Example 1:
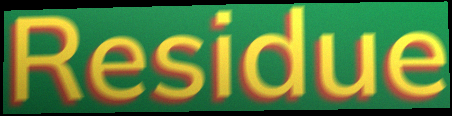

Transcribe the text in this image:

Residue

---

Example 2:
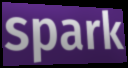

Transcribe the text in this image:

spark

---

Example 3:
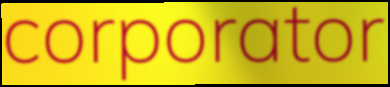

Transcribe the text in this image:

corporator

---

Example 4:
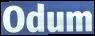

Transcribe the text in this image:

Odum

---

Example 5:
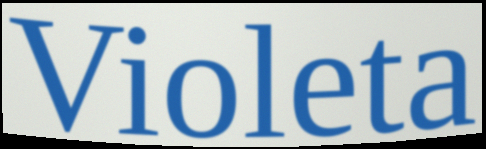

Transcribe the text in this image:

Violeta